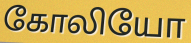
கோலியோ